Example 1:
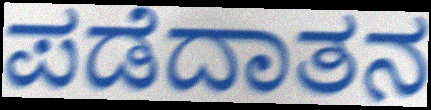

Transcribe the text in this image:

ಪಡೆದಾತನ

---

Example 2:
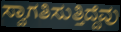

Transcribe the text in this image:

ಸ್ವಾಗತಿಸುತ್ತಿದ್ದೆವು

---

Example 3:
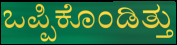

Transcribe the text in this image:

ಒಪ್ಪಿಕೊಂಡಿತ್ತು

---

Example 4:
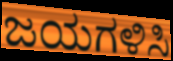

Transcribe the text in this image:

ಜಯಗಳಿಸಿ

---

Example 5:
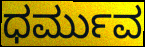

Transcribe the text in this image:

ಧರ್ಮುವ